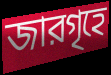
জারগৃহে